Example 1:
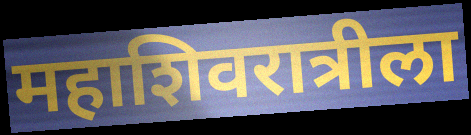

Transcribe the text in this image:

महाशिवरात्रीला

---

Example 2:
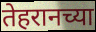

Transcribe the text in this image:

तेहरानच्या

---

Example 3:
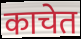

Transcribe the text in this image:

काचेत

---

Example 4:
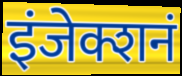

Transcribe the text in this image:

इंजेक्शनं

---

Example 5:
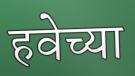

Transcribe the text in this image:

हवेच्या